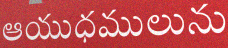
ఆయుధములును